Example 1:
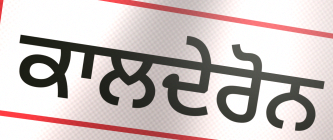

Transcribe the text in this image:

ਕਾਲਦੇਰੋਨ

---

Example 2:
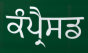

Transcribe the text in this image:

ਕੰਪ੍ਰੈਸਡ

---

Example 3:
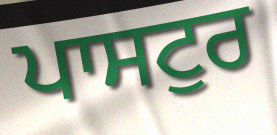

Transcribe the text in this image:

ਪਾਸਟੁਰ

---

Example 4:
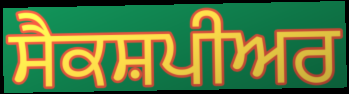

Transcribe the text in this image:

ਸੈਕਸ਼ਪੀਅਰ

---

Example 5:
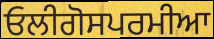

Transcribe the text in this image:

ਓਲੀਗੋਸਪਰਮੀਆ